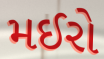
મઈરો